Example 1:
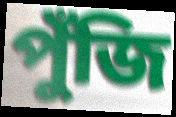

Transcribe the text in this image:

পুঁজি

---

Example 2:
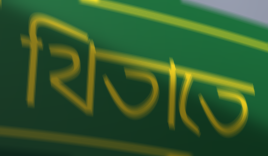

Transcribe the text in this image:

থিতাতে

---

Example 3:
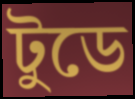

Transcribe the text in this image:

টুডে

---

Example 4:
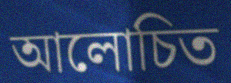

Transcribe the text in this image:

আলোচিত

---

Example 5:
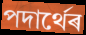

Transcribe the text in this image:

পদাৰ্থেৰ